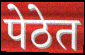
पेठेत